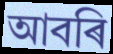
আবৰি